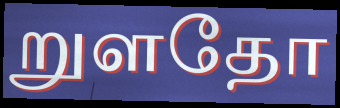
றுளதோ